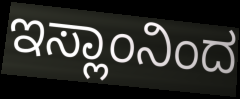
ಇಸ್ಲಾಂನಿಂದ